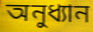
অনুধ্যান